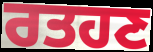
ਰਤਹਣ